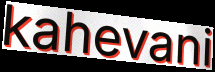
kahevani